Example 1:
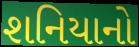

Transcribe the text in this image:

શનિયાનો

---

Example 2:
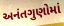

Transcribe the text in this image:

અનંતગુણોમાં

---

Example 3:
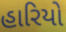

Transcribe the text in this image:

હારિયો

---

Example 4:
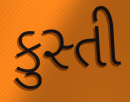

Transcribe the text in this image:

કુસ્તી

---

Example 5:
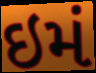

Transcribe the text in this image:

ઇમં